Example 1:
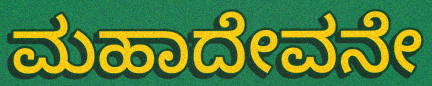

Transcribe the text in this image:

ಮಹಾದೇವನೇ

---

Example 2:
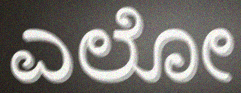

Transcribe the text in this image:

ಎಲೋ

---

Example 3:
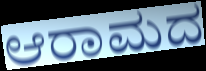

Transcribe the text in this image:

ಆರಾಮದ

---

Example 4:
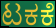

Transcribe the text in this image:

ಟಕಕೆ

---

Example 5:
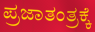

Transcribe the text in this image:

ಪ್ರಜಾತಂತ್ರಕ್ಕೆ